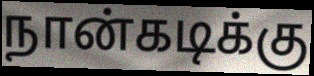
நான்கடிக்கு